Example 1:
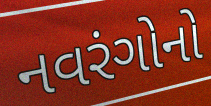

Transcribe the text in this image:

નવરંગોનો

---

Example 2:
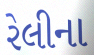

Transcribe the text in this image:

રેલીના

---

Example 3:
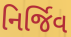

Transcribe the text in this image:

નિર્જિવ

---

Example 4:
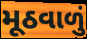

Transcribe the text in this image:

મૂઠવાળું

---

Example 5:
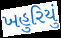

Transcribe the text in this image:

ખહુરિયું